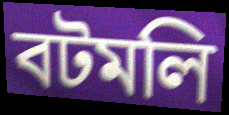
বটমলি